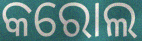
କରୋଲ